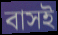
বাসই